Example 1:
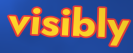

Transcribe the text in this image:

visibly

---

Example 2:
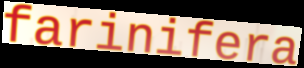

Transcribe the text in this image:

farinifera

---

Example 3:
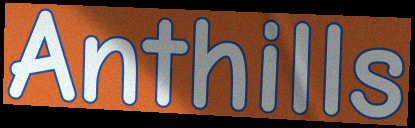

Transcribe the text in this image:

Anthills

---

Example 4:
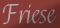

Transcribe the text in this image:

Friese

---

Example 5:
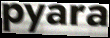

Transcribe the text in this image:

pyara